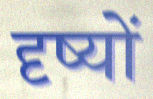
दृष्यों